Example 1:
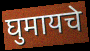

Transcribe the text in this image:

घुमायचे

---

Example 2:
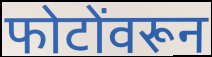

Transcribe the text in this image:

फोटोंवरून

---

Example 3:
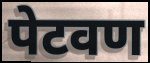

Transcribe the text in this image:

पेटवण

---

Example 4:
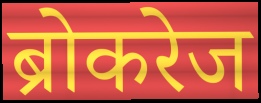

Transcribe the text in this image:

ब्रोकरेज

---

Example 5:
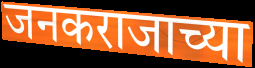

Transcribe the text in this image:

जनकराजाच्या